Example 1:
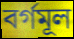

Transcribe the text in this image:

বৰ্গমূল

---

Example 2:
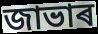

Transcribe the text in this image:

জাভাৰ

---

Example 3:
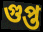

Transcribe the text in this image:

গুপ্ত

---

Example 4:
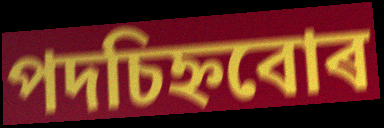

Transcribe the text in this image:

পদচিহ্নবোৰ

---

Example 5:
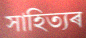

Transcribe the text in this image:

সাহিত্য়ৰ